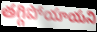
తగ్గిపోయాయని